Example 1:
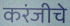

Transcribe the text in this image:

करंजीचे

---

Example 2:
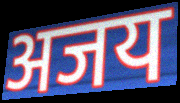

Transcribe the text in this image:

अजय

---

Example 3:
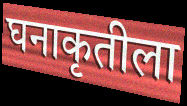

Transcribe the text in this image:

घनाकृतीला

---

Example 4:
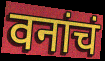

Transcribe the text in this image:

वनांचं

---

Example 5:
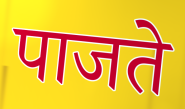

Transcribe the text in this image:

पाजते